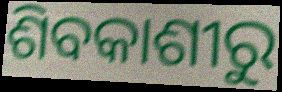
ଶିବକାଶୀରୁ